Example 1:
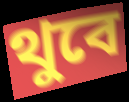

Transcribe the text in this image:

থুবে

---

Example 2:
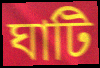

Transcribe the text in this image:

ঘাটি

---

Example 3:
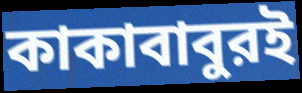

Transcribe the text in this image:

কাকাবাবুরই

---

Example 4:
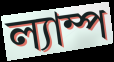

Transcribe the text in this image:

ল্যাম্প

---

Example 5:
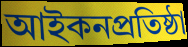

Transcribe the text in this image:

আইকনপ্রতিষ্ঠা